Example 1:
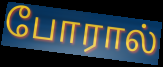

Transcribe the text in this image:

போரால்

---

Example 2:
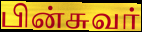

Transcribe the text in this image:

பின்சுவர்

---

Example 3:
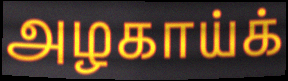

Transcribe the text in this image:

அழகாய்க்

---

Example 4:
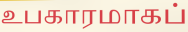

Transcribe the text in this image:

உபகாரமாகப்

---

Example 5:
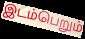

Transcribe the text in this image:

இடம்பெறும்